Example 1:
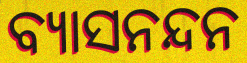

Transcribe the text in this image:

ବ୍ୟାସନନ୍ଦନ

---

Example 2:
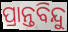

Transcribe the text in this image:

ପ୍ରାନ୍ତବିନ୍ଦୁ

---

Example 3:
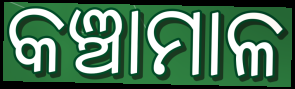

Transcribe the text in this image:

କଞ୍ଚାମାଳ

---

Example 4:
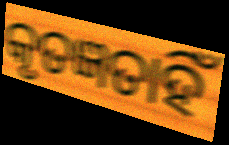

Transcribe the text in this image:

କୃତଜ୍ଞତାହିଁ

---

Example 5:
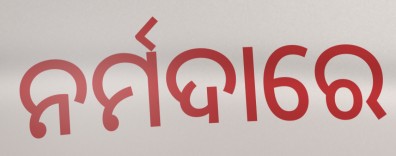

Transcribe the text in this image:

ନର୍ମଦାରେ